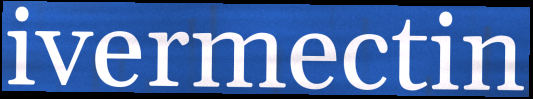
ivermectin